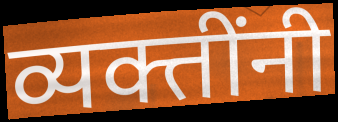
व्यक्तींनी